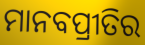
ମାନବପ୍ରୀତିର